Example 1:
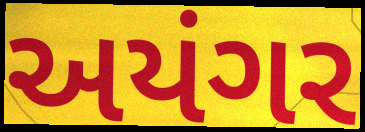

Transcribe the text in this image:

અયંગર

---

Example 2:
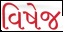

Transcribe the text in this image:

વિષેજ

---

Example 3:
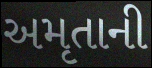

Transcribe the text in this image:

અમૃતાની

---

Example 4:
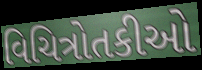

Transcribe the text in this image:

વિચિત્રોતકીઓ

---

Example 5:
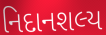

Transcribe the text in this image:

નિદાનશલ્ય